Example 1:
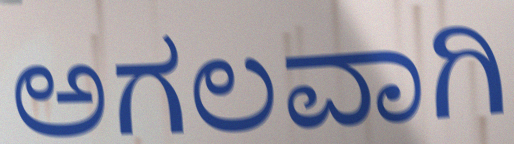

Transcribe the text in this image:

ಅಗಲವಾಗಿ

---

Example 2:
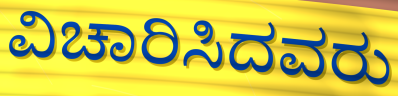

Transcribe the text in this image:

ವಿಚಾರಿಸಿದವರು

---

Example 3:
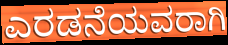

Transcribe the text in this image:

ಎರಡನೆಯವರಾಗಿ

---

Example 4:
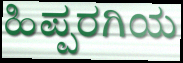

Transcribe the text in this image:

ಹಿಪ್ಪರಗಿಯ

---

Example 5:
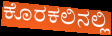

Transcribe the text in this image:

ಕೊರಕಲಿನಲ್ಲಿ